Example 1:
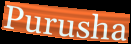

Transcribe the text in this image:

Purusha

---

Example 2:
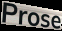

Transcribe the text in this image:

Prose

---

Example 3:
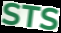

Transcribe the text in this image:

STS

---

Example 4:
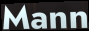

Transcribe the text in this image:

Mann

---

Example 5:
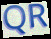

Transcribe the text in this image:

QR